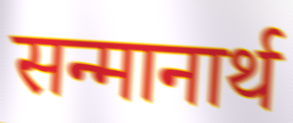
सन्मानार्थ